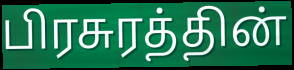
பிரசுரத்தின்